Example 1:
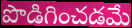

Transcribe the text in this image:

పొడిగించడమే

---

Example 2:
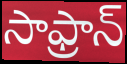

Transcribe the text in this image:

సాఫ్రాన్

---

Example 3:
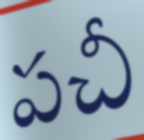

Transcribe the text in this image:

పచీ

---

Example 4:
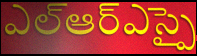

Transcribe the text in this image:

ఎల్ఆర్ఎస్పై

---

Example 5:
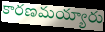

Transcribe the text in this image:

కారణమయ్యారు